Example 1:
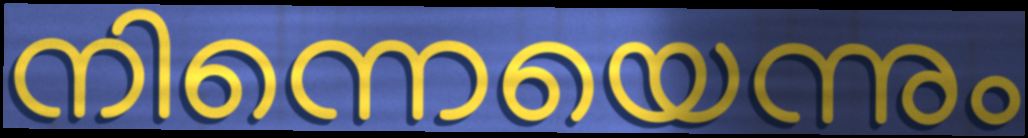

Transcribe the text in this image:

നിന്നെയെന്നും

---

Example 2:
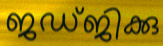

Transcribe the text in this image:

ജഡ്ജിക്കു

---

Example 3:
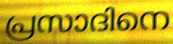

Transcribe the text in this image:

പ്രസാദിനെ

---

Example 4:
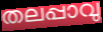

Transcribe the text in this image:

തലപ്പാവു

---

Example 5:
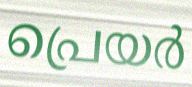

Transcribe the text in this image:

പ്രെയർ